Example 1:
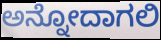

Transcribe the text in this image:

ಅನ್ನೋದಾಗಲಿ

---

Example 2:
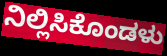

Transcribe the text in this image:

ನಿಲ್ಲಿಸಿಕೊಂಡಳು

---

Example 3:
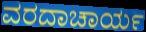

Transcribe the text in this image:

ವರದಾಚಾರ್ಯ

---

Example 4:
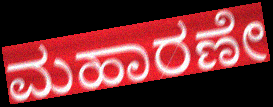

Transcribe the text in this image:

ಮಹಾರಣೇ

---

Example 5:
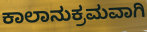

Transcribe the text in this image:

ಕಾಲಾನುಕ್ರಮವಾಗಿ